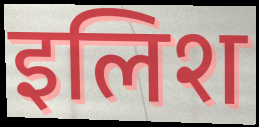
इलिश